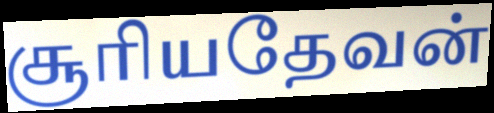
சூரியதேவன்